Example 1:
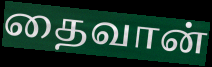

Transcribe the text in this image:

தைவான்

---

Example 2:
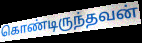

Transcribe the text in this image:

கொண்டிருந்தவன்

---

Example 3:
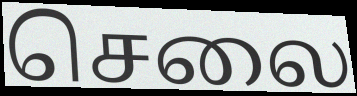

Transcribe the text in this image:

செலை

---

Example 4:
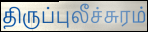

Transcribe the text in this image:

திருப்புலீச்சுரம்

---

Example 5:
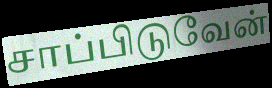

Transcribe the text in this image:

சாப்பிடுவேன்